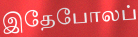
இதேபோலப்